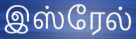
இஸ்ரேல்